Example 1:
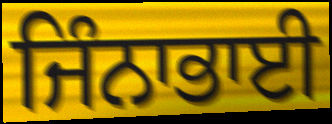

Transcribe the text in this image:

ਜਿੰਨਾਭਾਈ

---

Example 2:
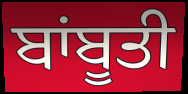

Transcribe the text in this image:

ਬਾਂਬੂਤੀ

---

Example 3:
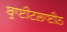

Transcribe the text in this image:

ਬ੍ਰਾਈਟਲਾਈਨ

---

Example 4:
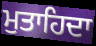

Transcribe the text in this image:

ਮੁਤਾਹਿਦਾ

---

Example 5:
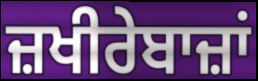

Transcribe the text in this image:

ਜ਼ਖੀਰੇਬਾਜ਼ਾਂ